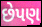
છેપણ